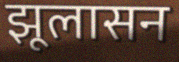
झूलासन